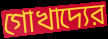
গোখাদ্যের